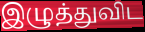
இழுத்துவிட